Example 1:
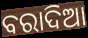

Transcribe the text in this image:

ବରାଦିଆ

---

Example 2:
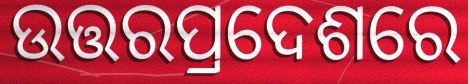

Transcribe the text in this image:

ଉତ୍ତରପ୍ରଦେଶରେ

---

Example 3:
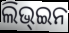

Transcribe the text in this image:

ଲିଭ୍ଇନ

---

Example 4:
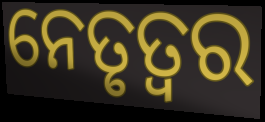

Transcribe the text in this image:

ନେତୃତ୍ଵର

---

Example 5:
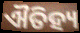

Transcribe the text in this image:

ଐତିହ୍ୟ